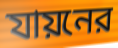
যায়নের